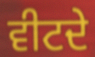
ਵੀਟਦੇ